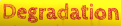
Degradation